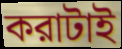
করাটাই